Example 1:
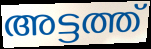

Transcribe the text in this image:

അട്ടത്ത്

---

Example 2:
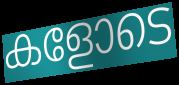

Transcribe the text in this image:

കളോടെ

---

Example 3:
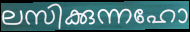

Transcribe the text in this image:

ലസിക്കുന്നഹോ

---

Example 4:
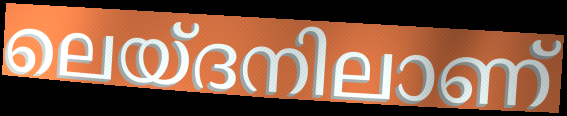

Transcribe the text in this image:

ലെയ്ദനിലാണ്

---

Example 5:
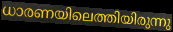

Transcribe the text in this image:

ധാരണയിലെത്തിയിരുന്നു